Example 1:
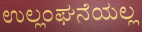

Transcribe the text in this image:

ಉಲ್ಲಂಘನೆಯಲ್ಲ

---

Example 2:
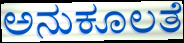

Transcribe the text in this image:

ಅನುಕೂಲತೆ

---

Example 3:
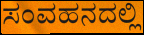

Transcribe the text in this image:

ಸಂವಹನದಲ್ಲಿ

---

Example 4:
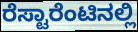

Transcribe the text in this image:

ರೆಸ್ಟಾರೆಂಟಿನಲ್ಲಿ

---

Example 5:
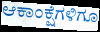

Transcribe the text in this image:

ಆಕಾಂಕ್ಷೆಗಳಿಗೂ